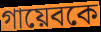
গায়েবকে